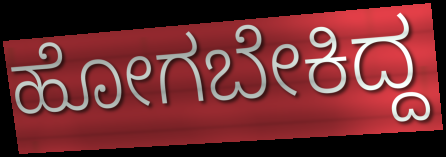
ಹೋಗಬೇಕಿದ್ದ